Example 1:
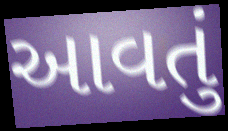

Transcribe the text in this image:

આવતું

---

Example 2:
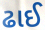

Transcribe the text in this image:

ઢાઈ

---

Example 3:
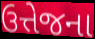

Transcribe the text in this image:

ઉત્તેજના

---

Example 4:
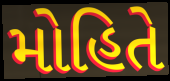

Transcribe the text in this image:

મોહિતે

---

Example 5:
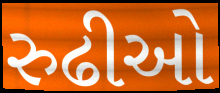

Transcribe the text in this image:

રુઢીઓ